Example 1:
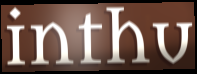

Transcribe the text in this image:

inthu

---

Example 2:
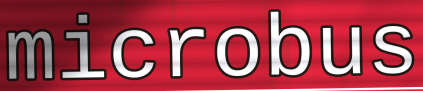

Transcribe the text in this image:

microbus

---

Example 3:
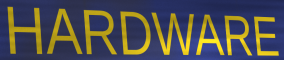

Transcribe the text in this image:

HARDWARE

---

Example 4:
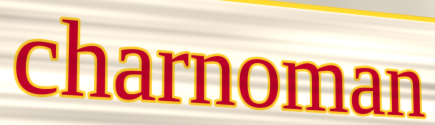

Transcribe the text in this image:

charnoman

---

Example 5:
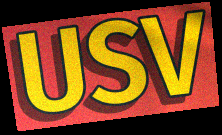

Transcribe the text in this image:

USV